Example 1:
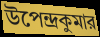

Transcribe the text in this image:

উপেন্দ্রকুমার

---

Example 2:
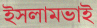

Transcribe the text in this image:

ইসলামভাই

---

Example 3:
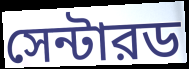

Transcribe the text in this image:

সেন্টারড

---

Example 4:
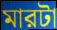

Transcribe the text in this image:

মারটা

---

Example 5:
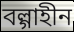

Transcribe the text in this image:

বল্গাহীন